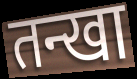
तन्खा